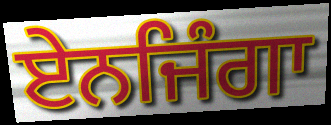
ਏਨਜਿੰਗਾ